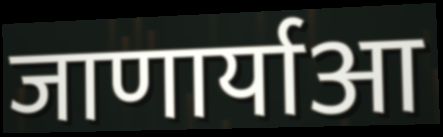
जाणार्याआ